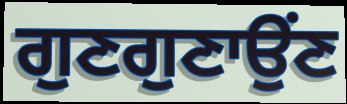
ਗੁਣਗੁਣਾਉਂਣ